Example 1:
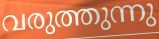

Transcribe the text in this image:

വരുത്തുന്നു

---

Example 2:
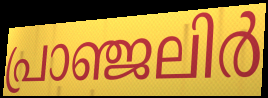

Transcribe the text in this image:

പ്രാഞ്ജലിർ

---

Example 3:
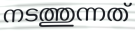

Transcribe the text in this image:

നടത്തുന്നത്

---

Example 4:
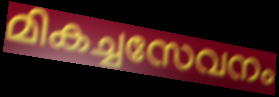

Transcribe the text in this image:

മികച്ചസേവനം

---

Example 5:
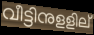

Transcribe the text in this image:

വീട്ടിനുളളില്